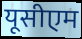
यूसीएम